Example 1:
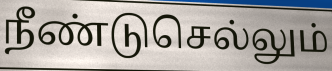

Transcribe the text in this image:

நீண்டுசெல்லும்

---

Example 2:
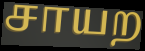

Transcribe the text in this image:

சாயற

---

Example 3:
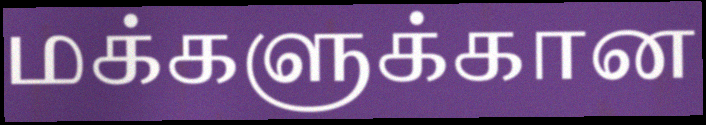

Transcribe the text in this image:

மக்களுக்கான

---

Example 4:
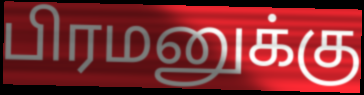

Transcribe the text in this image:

பிரமனுக்கு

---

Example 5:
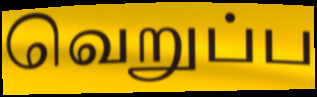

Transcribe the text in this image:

வெறுப்ப